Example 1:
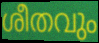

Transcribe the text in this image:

ശീതവും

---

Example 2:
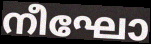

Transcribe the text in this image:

നീഘോ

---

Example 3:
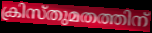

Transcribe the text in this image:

ക്രിസ്തുമതത്തിന്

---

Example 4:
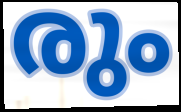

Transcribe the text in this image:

രും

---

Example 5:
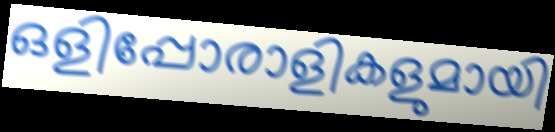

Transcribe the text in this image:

ഒളിപ്പോരാളികളുമായി